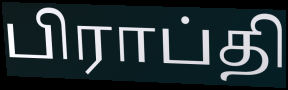
பிராப்தி